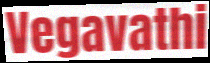
Vegavathi